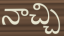
నాచ్చి